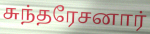
சுந்தரேசனார்